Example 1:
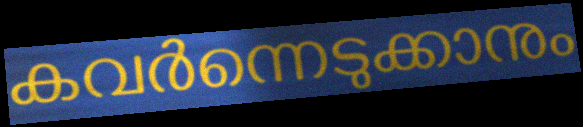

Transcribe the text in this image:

കവർന്നെടുക്കാനും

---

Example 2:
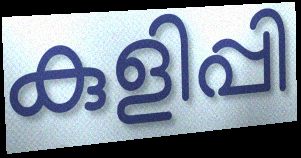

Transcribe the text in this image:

കുളിപ്പി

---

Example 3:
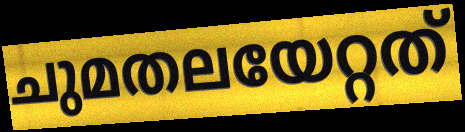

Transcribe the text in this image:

ചുമതലയേറ്റത്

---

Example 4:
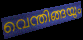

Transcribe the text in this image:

വെന്തിങ്ങയും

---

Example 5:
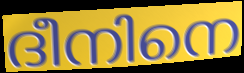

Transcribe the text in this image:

ദീനിനെ